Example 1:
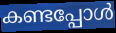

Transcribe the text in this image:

കണ്ടപ്പോൾ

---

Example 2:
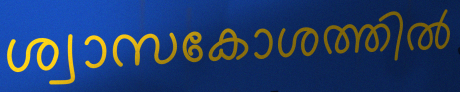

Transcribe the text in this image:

ശ്വാസകോശത്തിൽ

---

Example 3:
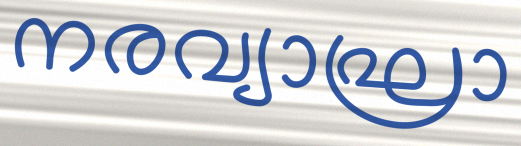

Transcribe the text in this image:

നരവ്യാഘ്രാ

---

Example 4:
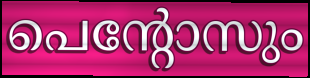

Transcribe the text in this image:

പെന്റോസും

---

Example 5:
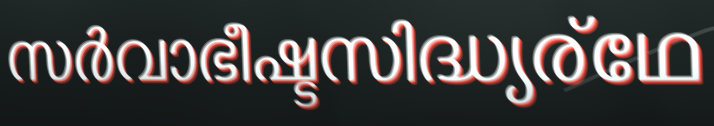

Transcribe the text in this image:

സർവാഭീഷ്ടസിദ്ധ്യര്ഥേ